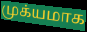
முக்யமாக